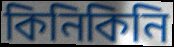
কিনিকিনি